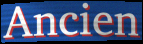
Ancien